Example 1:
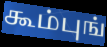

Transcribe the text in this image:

கூம்புங்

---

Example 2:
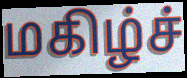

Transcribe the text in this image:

மகிழ்ச்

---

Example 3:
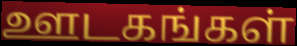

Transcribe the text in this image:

ஊடகங்கள்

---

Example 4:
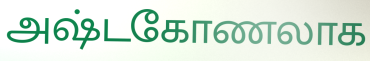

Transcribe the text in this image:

அஷ்டகோணலாக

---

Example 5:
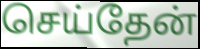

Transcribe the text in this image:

செய்தேன்